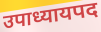
उपाध्यायपद